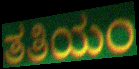
ತತಿಯಂ